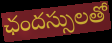
ఛందస్సులతో